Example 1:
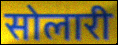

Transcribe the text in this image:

सोलारी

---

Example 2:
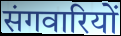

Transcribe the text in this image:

संगवारियों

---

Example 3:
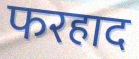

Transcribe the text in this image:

फरहाद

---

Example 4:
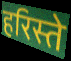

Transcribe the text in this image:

हरिस्ते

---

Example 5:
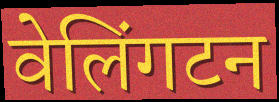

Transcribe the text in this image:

वेलिंगटन